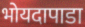
भोयदापाडा